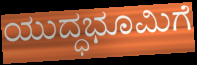
ಯುದ್ಧಭೂಮಿಗೆ